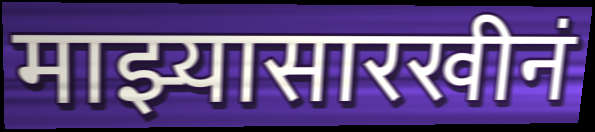
माझ्यासारखीनं